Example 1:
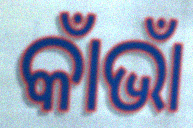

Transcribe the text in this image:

କାଁଭାଁ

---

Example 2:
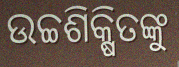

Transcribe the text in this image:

ଉଚ୍ଚଶିକ୍ଷିତଙ୍କୁ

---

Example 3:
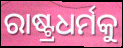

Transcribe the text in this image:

ରାଷ୍ଟ୍ରଧର୍ମକୁ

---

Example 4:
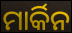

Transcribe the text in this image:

ମାର୍କିନ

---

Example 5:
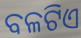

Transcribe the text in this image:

ବଳଟିଏ